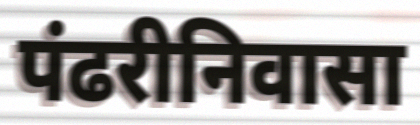
पंढरीनिवासा